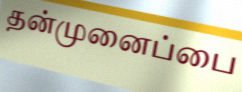
தன்முனைப்பை